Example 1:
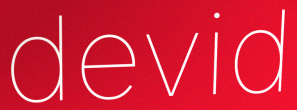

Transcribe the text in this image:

devid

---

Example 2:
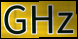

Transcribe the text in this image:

GHz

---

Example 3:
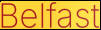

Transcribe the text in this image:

Belfast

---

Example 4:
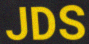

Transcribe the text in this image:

JDS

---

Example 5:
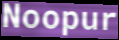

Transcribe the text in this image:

Noopur